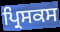
ਪ੍ਰਿਸਕਸ